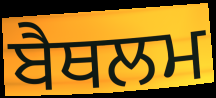
ਬੈਥਲਮ